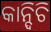
କାନ୍ଦିଚି